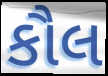
કૌલ